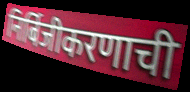
निर्बिजीकरणाची